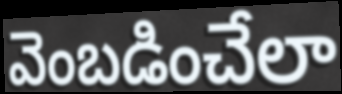
వెంబడించేలా